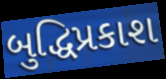
બુદ્ધિપ્રકાશ